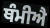
ਥੰਮੀਐ